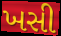
ખસી